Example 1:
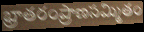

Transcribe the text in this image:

భ్రాతరంప్రాణసమ్మితం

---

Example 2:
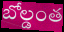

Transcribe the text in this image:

బోల్డంత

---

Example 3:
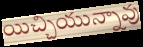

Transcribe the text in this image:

యిచ్చియున్నావు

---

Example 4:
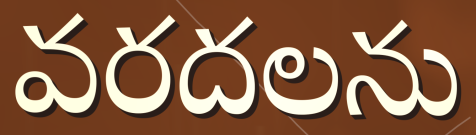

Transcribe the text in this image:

వరదలను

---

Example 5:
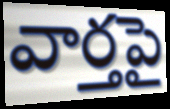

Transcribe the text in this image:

వార్తపై